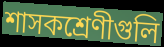
শাসকশ্রেণীগুলি